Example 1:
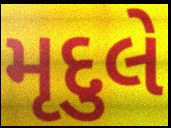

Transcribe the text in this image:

મૃદુલે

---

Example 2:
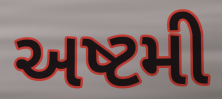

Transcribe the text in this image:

અષ્ટમી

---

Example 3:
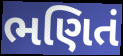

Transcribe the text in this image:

ભણિતં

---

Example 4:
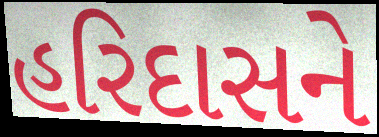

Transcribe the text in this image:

હરિદાસને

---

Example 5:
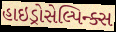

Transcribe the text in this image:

હાઇડ્રોસેલ્પિન્ક્સ